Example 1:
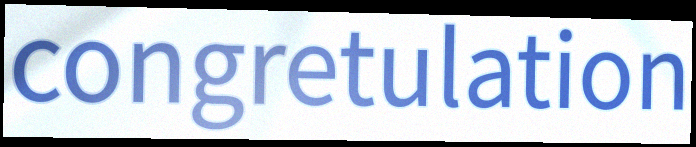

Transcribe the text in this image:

congretulation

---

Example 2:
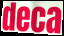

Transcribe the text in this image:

deca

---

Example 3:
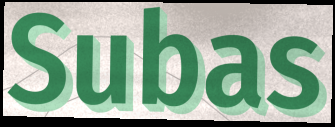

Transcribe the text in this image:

Subas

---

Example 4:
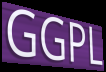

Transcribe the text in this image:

GGPL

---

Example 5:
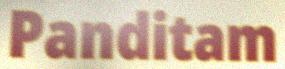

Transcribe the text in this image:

Panditam